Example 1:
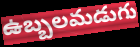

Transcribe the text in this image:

ఉబ్బలమడుగు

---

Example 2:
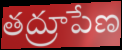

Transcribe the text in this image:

తద్రూపేణ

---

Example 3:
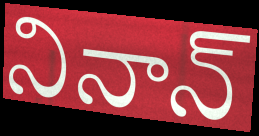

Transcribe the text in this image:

నినాన్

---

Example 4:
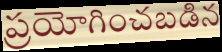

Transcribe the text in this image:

ప్రయోగించబడిన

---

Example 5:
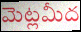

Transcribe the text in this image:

మెట్లమీద